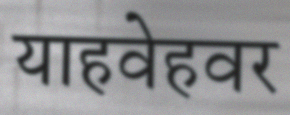
याहवेहवर